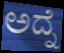
ಅದ್ನೆ